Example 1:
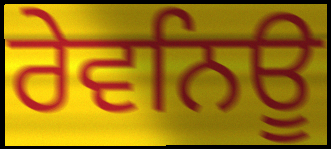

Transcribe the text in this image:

ਰੇਵਨਿਊ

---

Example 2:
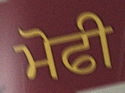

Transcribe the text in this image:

ਮੋਫੀ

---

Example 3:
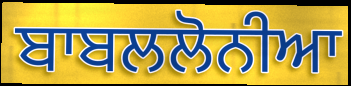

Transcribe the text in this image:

ਬਾਬਲਲੋਨੀਆ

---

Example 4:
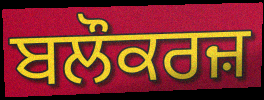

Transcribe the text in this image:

ਬਲੌਕਰਜ਼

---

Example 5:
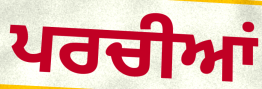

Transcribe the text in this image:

ਪਰਚੀਆਂ